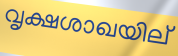
വൃക്ഷശാഖയില്